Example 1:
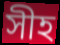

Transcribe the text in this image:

সীহ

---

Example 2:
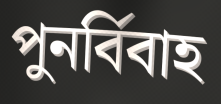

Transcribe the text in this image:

পুনৰ্বিবাহ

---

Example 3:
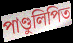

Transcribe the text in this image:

পাণ্ডুলিপিত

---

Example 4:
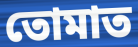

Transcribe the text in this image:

তোমাত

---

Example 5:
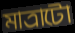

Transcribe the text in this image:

মাত্ৰাটো